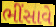
ભીંસાવે